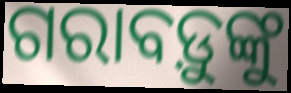
ଗରାବଡ଼ୁଙ୍କୁ